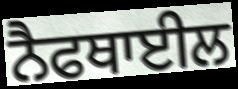
ਨੈਫਥਾਈਲ